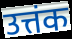
उत्तंक